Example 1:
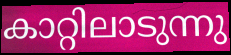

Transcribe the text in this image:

കാറ്റിലാടുന്നു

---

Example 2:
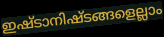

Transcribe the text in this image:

ഇഷ്ടാനിഷ്ടങ്ങളെല്ലാം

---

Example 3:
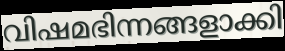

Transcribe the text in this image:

വിഷമഭിന്നങ്ങളാക്കി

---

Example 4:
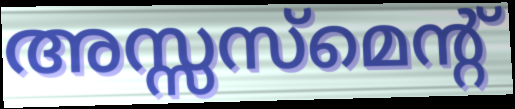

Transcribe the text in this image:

അസ്സസ്മെന്റ്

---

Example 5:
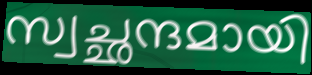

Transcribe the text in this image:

സ്വച്ഛന്ദമായി